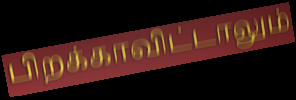
பிறக்காவிட்டாலும்